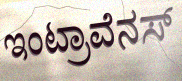
ಇಂಟ್ರಾವೆನಸ್